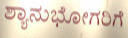
ಶ್ಯಾನುಭೋಗರಿಗೆ